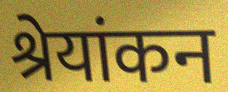
श्रेयांकन